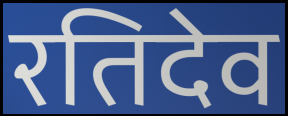
रतिदेव